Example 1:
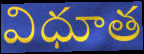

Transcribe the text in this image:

విధూత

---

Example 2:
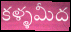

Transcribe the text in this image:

కళ్ళమీద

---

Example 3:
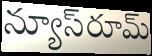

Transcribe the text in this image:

న్యూస్‌రూమ్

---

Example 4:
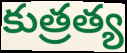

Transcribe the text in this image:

కుత్రత్య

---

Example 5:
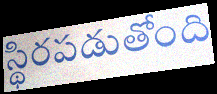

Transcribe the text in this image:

స్థిరపడుతోంది